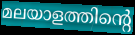
മലയാളത്തിന്റെ